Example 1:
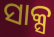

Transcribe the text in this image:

ସାକ୍ସ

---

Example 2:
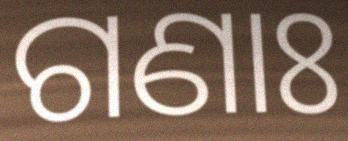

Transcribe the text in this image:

ଗଣାଃ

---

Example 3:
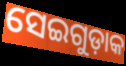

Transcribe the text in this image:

ସେଇଗୁଡ଼ାକ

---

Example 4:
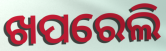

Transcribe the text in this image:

ଖପରେଲି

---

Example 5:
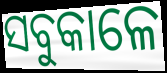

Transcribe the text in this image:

ସବୁକାଳେ